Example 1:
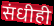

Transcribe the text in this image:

संधीही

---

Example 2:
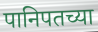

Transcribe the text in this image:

पानिपतच्या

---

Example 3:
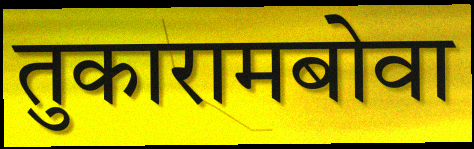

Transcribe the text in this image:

तुकारामबोवा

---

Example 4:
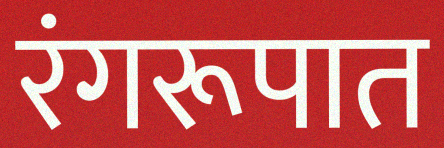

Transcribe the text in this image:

रंगरूपात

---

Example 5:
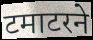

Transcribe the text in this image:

टमाटरने